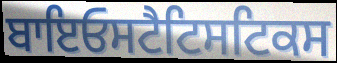
ਬਾਇਓਸਟੈਟਿਸਟਿਕਸ